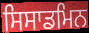
ਸਿਸਾਡਮਿਨ